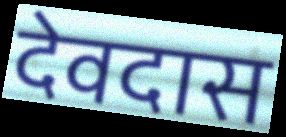
देवदास